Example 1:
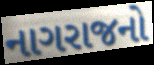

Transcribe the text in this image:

નાગરાજનો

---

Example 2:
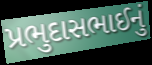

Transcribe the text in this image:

પ્રભુદાસભાઈનું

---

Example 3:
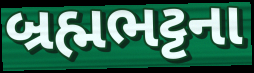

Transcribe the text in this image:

બ્રહ્મભટ્ટના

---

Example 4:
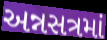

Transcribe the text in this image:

અન્નસત્રમાં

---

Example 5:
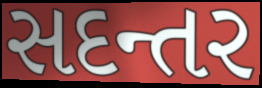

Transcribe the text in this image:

સદન્તર